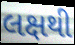
લક્ષથી